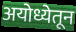
अयोध्येतून